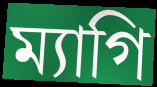
ম্যাগি